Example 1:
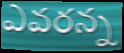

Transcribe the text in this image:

ఎవరన్న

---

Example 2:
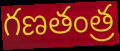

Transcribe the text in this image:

గణతంత్ర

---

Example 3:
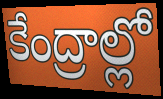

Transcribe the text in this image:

కేంద్రాల్లో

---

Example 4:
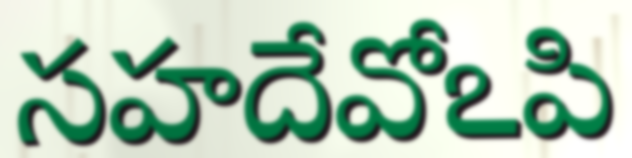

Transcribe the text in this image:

సహదేవోఽపి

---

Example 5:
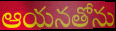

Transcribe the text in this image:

ఆయనతోను